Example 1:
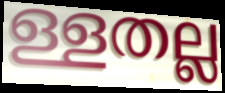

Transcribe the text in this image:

ള്ളതല്ല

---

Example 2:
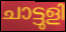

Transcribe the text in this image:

ചാട്ടുളി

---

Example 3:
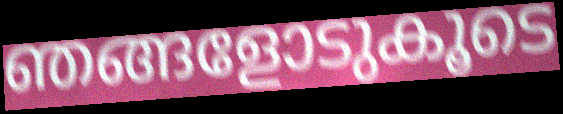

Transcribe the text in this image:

ഞങ്ങളോടുകൂടെ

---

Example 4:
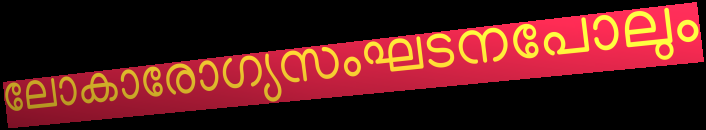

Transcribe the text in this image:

ലോകാരോഗ്യസംഘടനപോലും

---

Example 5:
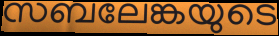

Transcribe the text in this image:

സബലേങ്കയുടെ